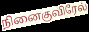
நினைகுவிரேல்